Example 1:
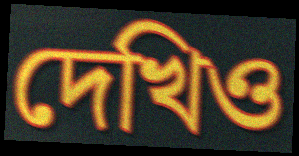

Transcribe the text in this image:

দেখিও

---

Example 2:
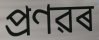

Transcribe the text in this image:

প্ৰণৱৰ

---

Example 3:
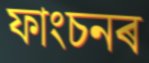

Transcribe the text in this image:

ফাংচনৰ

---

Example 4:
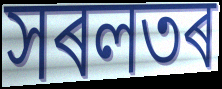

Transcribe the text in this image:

সৰলতৰ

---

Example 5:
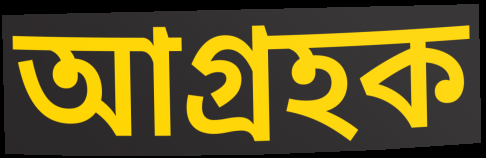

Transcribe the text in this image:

আগ্ৰহক